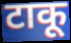
टाकू